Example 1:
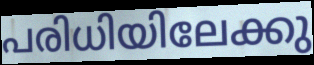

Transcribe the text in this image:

പരിധിയിലേക്കു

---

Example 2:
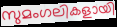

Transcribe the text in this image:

സുമംഗലികളായി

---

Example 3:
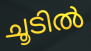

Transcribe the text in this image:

ചൂടിൽ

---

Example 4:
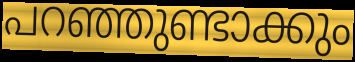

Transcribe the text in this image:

പറഞ്ഞുണ്ടാക്കും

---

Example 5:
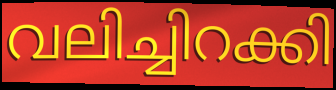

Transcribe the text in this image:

വലിച്ചിറക്കി